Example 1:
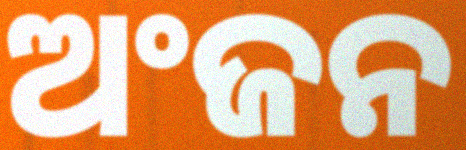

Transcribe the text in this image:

ଅଂଜନ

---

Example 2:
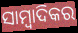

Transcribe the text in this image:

ସାମ୍ବାଦିକର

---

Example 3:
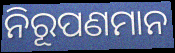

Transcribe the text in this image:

ନିରୂପଣମାନ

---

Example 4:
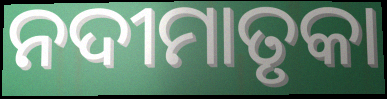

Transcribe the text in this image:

ନଦୀମାତୃକା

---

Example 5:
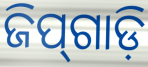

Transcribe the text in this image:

ଜିପ୍‌ଗାଡ଼ି